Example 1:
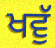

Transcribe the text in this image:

ਖਵੁੱ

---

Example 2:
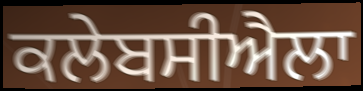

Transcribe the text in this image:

ਕਲੇਬਸੀਐਲਾ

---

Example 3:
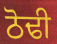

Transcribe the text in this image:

ਠੋਢੀ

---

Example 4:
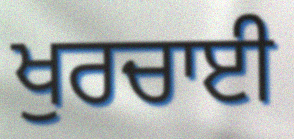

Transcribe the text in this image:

ਖੁਰਚਾਈ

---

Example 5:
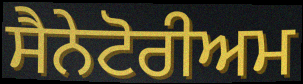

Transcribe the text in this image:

ਸੈਨੇਟੋਰੀਅਮ